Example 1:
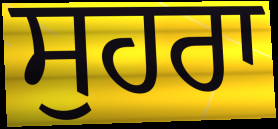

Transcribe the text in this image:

ਸੁਹਰਾ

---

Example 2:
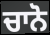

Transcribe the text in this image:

ਚਾਨੋ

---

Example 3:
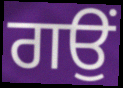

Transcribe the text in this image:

ਗਉਂ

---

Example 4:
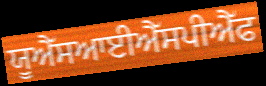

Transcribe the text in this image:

ਯੂਐੱਸਆਈਐੱਸਪੀਐੱਫ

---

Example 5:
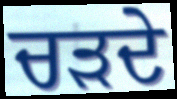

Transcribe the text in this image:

ਚੜਦੇ